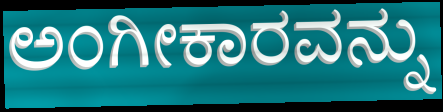
ಅಂಗೀಕಾರವನ್ನು